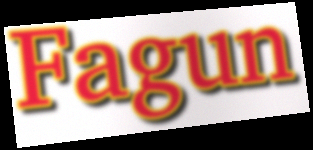
Fagun